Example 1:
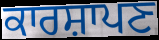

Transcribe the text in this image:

ਕਾਰਸ਼ਾਪਣ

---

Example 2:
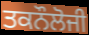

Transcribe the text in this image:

ਤਕਨੌਲੋਜੀ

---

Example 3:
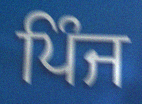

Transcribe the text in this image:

ਪਿੰਜ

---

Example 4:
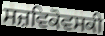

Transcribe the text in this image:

ਸਜ਼ਵਿਕੋਵਸਕੀ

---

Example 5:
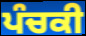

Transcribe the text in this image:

ਪੰਚਕੀ